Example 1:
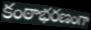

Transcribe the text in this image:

కంఠాభరణంగా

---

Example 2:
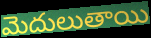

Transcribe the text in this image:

మెదులుతాయి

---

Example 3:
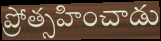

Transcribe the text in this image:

ప్రోత్సహించాడు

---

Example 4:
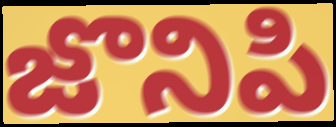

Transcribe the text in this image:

జొనిపి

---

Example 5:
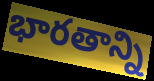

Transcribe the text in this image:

భారతాన్ని